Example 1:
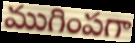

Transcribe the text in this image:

ముగింపగా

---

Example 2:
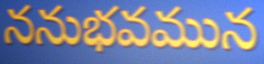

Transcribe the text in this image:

ననుభవమున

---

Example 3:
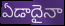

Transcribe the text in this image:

ఏడాదైనా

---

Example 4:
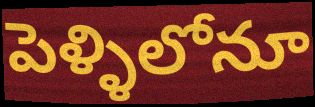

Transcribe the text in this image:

పెళ్ళిలోనూ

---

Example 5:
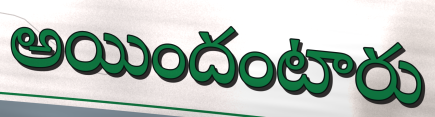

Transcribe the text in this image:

అయిందంటారు